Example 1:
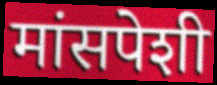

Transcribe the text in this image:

मांसपेशी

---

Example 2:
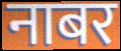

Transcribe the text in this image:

नाबर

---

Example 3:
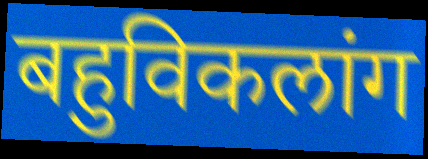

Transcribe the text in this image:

बहुविकलांग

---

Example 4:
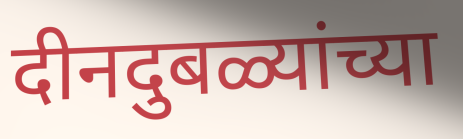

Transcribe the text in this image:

दीनदुबळ्यांच्या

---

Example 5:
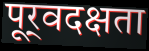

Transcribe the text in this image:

पूर्वदक्षता